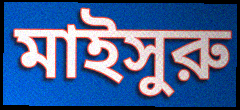
মাইসুরু